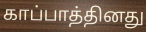
காப்பாத்தினது